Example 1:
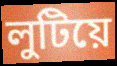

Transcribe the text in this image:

লুটিয়ে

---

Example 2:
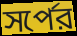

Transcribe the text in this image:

সর্পের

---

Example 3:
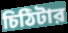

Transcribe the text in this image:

চিঠিটার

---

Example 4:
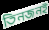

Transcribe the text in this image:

তিনজনই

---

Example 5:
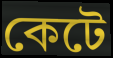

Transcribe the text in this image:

কেটে